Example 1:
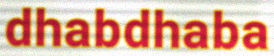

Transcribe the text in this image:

dhabdhaba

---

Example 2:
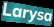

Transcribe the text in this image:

Larysa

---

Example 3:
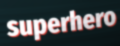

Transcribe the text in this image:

superhero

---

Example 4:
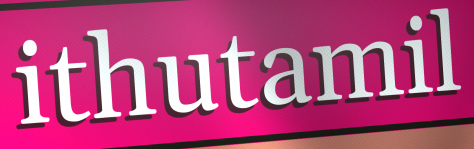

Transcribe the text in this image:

ithutamil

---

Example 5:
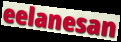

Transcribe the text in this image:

eelanesan